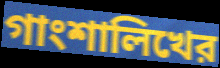
গাংশালিখের